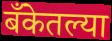
बँकेतल्या